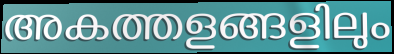
അകത്തളങ്ങളിലും